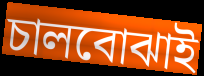
চালবোঝাই